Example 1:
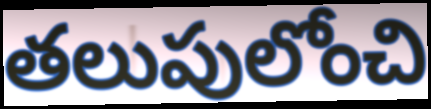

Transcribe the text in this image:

తలుపులోంచి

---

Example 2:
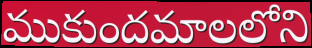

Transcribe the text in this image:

ముకుందమాలలోని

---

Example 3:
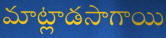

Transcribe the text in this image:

మాట్లాడసాగాయి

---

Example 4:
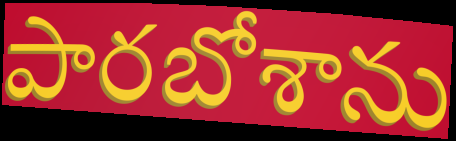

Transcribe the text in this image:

పారబోశాను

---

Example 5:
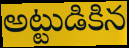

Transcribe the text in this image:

అట్టుడికిన